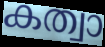
കത്വാ